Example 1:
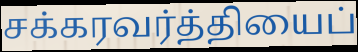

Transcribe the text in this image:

சக்கரவர்த்தியைப்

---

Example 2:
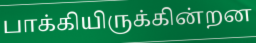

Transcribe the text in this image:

பாக்கியிருக்கின்றன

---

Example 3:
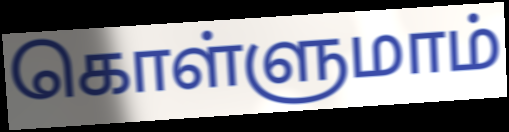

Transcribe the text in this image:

கொள்ளுமாம்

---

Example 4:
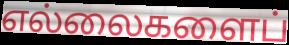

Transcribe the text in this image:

எல்லைகளைப்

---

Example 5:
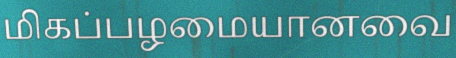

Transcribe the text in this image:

மிகப்பழமையானவை